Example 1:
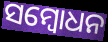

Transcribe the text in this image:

ସମ୍ବୋଧନ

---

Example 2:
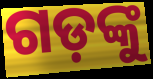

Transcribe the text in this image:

ଗଡ଼ଙ୍କୁ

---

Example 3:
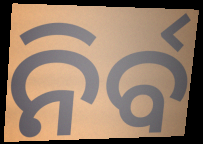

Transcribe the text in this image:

ନିର୍ବ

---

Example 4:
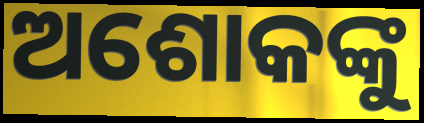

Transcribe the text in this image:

ଅଶୋକଙ୍କୁ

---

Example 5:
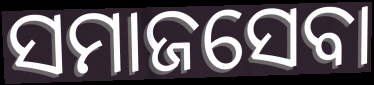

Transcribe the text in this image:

ସମାଜସେବା